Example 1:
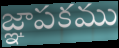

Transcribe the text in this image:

జ్ఞాపకము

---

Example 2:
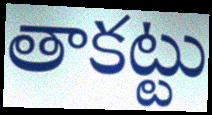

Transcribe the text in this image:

తాకట్టు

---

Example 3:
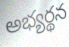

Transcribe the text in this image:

అభ్యర్థన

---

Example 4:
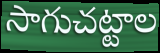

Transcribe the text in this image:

సాగుచట్టాల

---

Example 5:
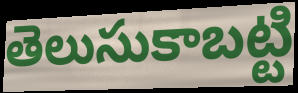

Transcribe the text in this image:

తెలుసుకాబట్టి